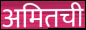
अमितची